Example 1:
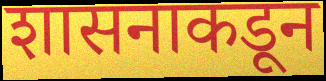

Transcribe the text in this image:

शासनाकडून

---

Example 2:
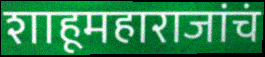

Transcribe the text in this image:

शाहूमहाराजांचं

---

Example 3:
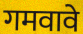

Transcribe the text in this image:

गमवावे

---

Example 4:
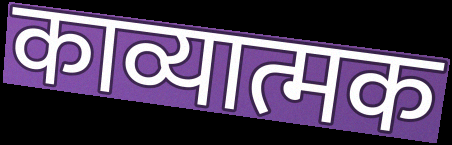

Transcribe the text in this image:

काव्यात्मक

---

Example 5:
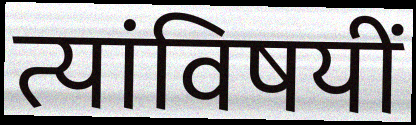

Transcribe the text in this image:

त्यांविषयीं